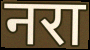
नरा